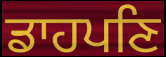
ਡਾਹਪਣਿ